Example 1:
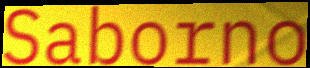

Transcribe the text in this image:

Saborno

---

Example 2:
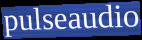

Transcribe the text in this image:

pulseaudio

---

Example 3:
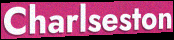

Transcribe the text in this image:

Charlseston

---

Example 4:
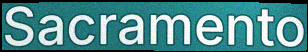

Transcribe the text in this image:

Sacramento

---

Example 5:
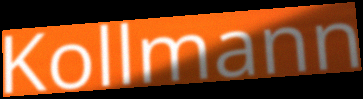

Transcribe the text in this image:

Kollmann